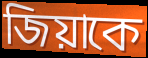
জিয়াকে